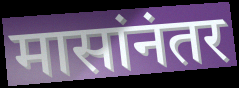
मासांनंतर